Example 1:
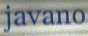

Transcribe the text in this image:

javano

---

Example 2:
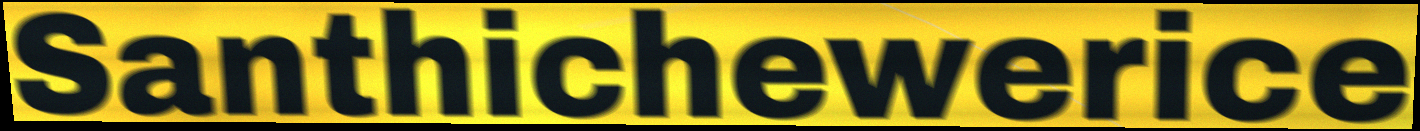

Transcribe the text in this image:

Santhichewerice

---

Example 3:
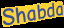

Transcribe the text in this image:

Shabda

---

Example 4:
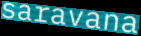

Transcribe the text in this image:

saravana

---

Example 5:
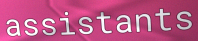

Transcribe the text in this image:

assistants